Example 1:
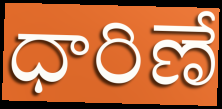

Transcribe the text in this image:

ధారిణే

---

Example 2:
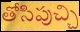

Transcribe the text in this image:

తోసిపుచ్చి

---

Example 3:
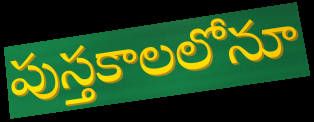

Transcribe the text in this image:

పుస్తకాలలోనూ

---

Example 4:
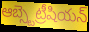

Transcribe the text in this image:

ఆబ్స్టెట్రీషియన్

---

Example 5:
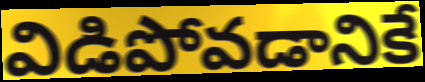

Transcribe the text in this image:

విడిపోవడానికే